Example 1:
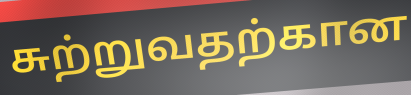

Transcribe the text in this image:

சுற்றுவதற்கான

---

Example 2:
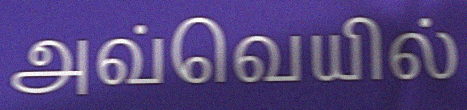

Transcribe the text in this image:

அவ்வெயில்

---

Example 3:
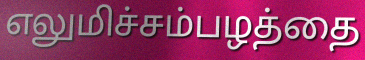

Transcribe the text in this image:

எலுமிச்சம்பழத்தை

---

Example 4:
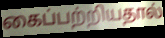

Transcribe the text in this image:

கைப்பற்றியதால்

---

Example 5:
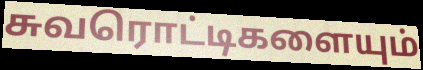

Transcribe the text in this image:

சுவரொட்டிகளையும்